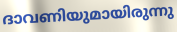
ദാവണിയുമായിരുന്നു